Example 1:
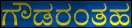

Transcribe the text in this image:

ಗೌಡರಂತಹ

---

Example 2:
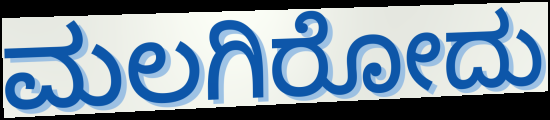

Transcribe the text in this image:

ಮಲಗಿರೋದು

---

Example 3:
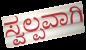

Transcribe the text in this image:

ಸ್ವಲ್ಪವಾಗಿ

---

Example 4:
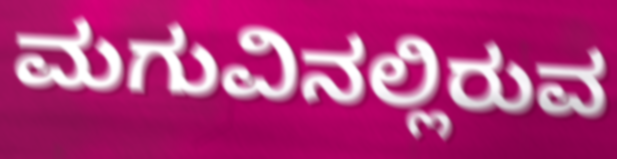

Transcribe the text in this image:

ಮಗುವಿನಲ್ಲಿರುವ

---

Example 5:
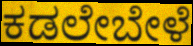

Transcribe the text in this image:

ಕಡಲೇಬೇಳೆ